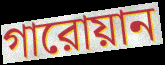
গারোয়ান